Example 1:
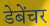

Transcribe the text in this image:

डेबेंचर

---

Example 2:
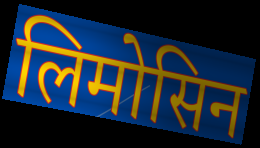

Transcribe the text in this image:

लिमोसिन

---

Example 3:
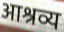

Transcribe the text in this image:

आश्रव्य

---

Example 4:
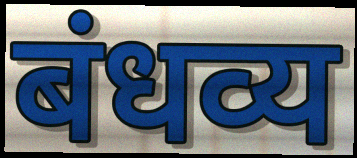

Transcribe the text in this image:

बंधव्य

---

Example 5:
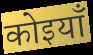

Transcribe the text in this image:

कोइयाँ